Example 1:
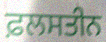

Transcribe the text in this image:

ਫ਼ਲਸਤੀਨ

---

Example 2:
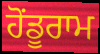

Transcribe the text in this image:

ਹੋਂਡੂਰਾਮ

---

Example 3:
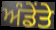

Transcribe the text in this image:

ਅੰਡੇਂਤੇ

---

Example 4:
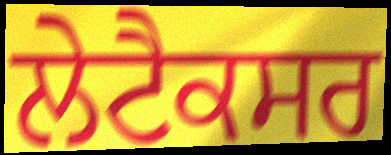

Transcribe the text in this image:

ਲੇਟੈਕਸਰ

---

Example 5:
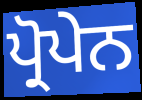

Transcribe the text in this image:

ਪ੍ਰੋਪੇਨ